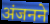
अंजनने